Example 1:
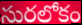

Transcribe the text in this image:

సురలోకం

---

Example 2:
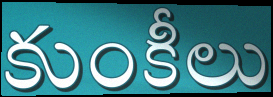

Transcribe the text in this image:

కుంకీలు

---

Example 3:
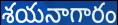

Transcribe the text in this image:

శయనాగారం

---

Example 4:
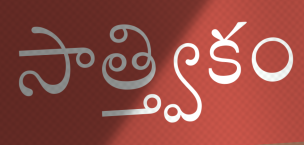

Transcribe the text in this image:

సాత్త్వికం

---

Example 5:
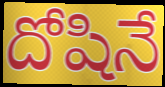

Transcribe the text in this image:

దోషినే